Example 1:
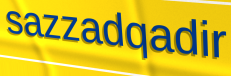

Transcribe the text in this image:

sazzadqadir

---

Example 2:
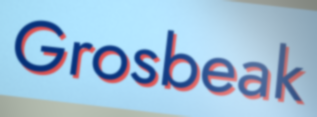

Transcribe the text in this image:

Grosbeak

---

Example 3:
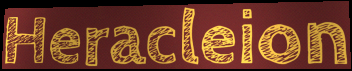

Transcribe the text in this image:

Heracleion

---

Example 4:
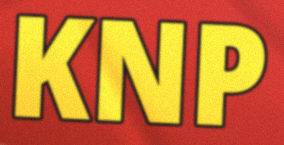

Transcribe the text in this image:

KNP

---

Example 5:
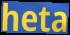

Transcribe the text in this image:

heta